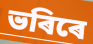
ভৰিৰে